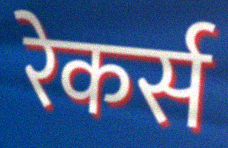
रेकर्स